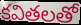
కవితలతో